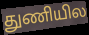
துணியில